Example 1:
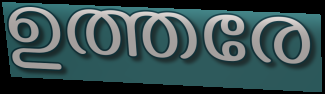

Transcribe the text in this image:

ഉത്തരേ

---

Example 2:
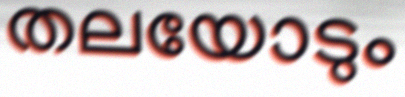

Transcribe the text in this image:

തലയോടും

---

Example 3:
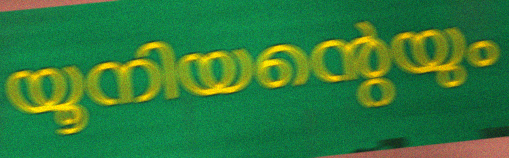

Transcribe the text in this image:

യൂനിയന്റെയും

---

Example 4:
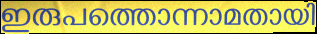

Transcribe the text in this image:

ഇരുപത്തൊന്നാമതായി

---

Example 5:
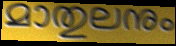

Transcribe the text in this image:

മാതുലനും